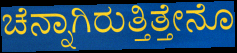
ಚೆನ್ನಾಗಿರುತ್ತಿತ್ತೇನೊ